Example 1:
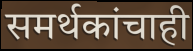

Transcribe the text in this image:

समर्थकांचाही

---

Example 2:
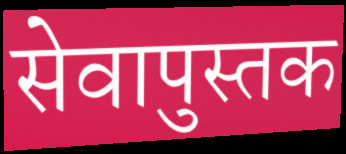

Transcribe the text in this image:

सेवापुस्तक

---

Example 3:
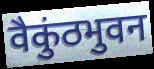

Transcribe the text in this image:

वैकुंठभुवन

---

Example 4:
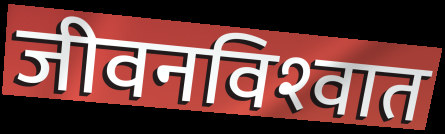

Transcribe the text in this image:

जीवनविश्वात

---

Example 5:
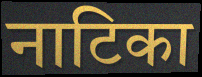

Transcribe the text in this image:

नाटिका